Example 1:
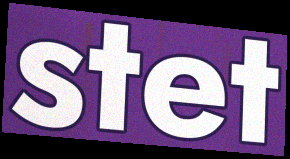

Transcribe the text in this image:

stet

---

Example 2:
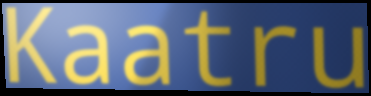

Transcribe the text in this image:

Kaatru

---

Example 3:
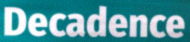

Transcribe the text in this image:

Decadence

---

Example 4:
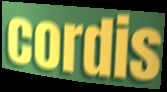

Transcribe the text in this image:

cordis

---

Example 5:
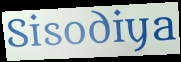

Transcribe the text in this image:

Sisodiya